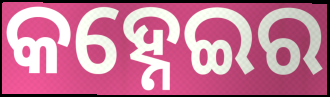
କହ୍ନେଇର